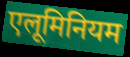
एलूमिनियम